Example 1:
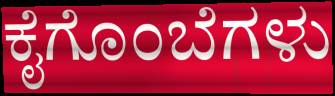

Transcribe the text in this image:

ಕೈಗೊಂಬೆಗಳು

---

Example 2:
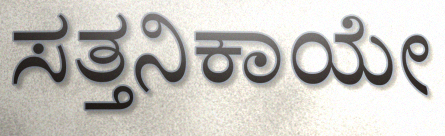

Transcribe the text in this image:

ಸತ್ತನಿಕಾಯೇ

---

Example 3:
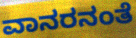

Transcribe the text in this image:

ವಾನರನಂತೆ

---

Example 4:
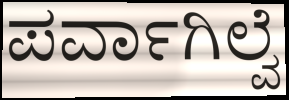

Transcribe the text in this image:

ಪರ್ವಾಗಿಲ್ವೆ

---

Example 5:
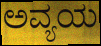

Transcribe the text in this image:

ಅವ್ಯಯ